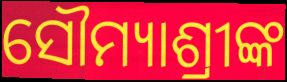
ସୌମ୍ୟାଶ୍ରୀଙ୍କ